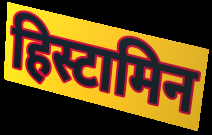
हिस्टामिन